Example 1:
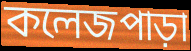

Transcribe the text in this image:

কলেজপাড়া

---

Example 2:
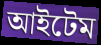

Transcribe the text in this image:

আইটেম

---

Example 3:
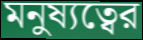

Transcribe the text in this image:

মনুষ্যত্বের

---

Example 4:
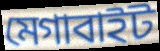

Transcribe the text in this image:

মেগাবাইট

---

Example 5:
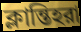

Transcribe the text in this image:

ক্লান্তিহরা